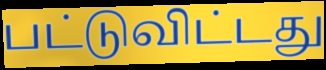
பட்டுவிட்டது